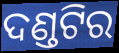
ଦଣ୍ଡଟିର